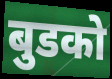
बुडको